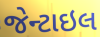
જેન્ટાઇલ